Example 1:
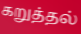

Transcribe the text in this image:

கறுத்தல்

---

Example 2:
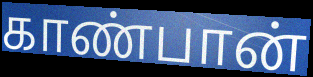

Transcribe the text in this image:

காண்பான்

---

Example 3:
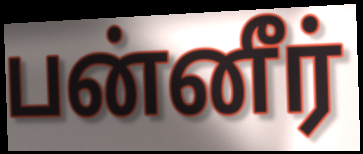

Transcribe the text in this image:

பன்னீர்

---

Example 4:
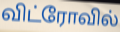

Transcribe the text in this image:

விட்ரோவில்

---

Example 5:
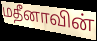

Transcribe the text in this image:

மதீனாவின்